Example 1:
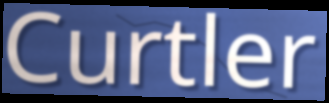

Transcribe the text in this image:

Curtler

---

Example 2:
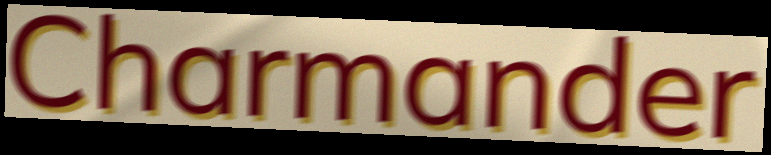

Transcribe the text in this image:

Charmander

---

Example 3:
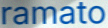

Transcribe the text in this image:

ramato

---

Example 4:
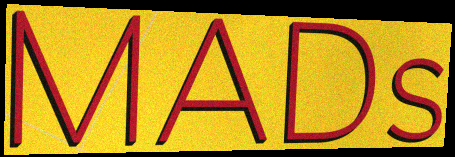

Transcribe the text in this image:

MADs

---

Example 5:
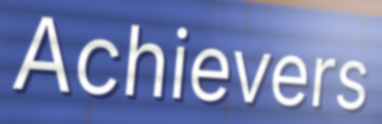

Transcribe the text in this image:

Achievers